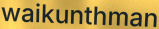
waikunthman